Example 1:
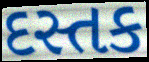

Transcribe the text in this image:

દસ્તક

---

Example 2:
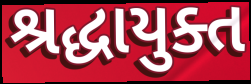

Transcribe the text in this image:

શ્રદ્ધાયુક્ત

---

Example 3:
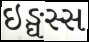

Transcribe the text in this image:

ઇઙ્ઘસ્સ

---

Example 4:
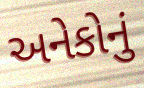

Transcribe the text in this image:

અનેકોનું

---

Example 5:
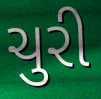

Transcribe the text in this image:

ચુરી